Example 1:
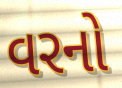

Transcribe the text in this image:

વરનો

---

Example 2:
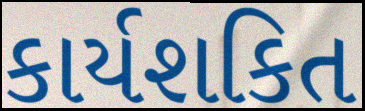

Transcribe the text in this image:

કાર્યશકિત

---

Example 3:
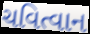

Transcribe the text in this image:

ચવિત્વાન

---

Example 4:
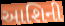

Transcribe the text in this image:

આશિની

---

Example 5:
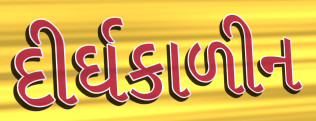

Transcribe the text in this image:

દીર્ઘકાળીન